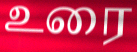
உரை